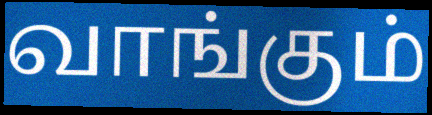
வாங்கும்